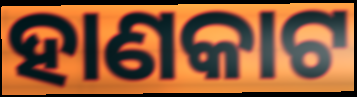
ହାଣକାଟ